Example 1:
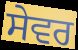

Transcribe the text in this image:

ਸੇਵਰ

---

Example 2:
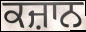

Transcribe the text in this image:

ਕਜ਼ਾਨ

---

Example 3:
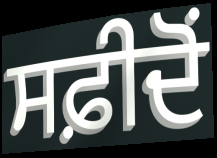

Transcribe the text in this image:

ਸਫ਼ੀਦੋਂ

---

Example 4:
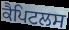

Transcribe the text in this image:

ਕੈਪਿਟਲਸ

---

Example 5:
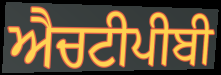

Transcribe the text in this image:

ਐਚਟੀਪੀਬੀ